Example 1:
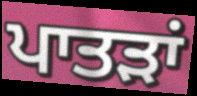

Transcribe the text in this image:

ਪਾਤੜਾਂ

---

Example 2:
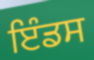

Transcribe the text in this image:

ਇੰਡਸ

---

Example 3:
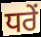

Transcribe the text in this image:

ਧਰੇਂ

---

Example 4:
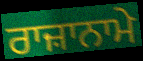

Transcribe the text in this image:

ਰਾਜ਼ਾਨਾਮੇ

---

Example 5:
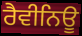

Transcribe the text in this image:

ਰੈਵੀਨਿਊ